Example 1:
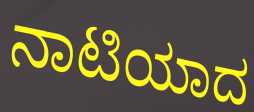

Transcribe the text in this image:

ನಾಟಿಯಾದ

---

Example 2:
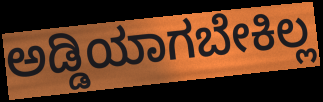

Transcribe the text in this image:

ಅಡ್ಡಿಯಾಗಬೇಕಿಲ್ಲ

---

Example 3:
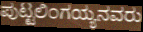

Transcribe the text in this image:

ಪುಟ್ಟಲಿಂಗಯ್ಯನವರು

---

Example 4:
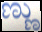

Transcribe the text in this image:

ಣ್ಣು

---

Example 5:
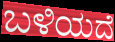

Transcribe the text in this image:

ಬಳಿಯದೆ